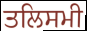
ਤਲਿਸਮੀ